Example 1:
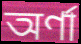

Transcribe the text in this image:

অর্ণা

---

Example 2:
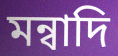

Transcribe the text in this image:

মন্বাদি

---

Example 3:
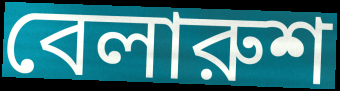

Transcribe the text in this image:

বেলারুশ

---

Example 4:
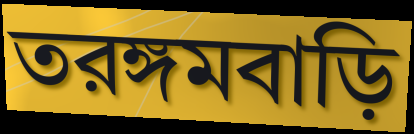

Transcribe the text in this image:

তরঙ্গমবাড়ি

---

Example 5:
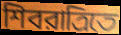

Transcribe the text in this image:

শিবরাত্রিতে